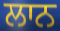
ਲਾਨ